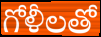
గోళీలతో